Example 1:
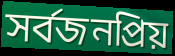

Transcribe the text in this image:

সর্বজনপ্রিয়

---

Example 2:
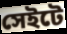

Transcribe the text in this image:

সেইটে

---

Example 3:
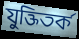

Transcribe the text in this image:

যুক্তিতর্ক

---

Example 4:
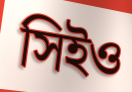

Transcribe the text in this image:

সিইও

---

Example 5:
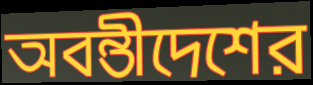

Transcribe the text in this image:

অবন্তীদেশের